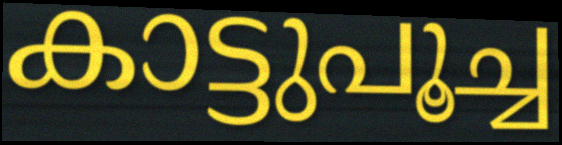
കാട്ടുപൂച്ച